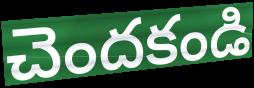
చెందకండి